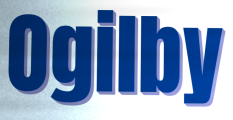
Ogilby